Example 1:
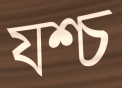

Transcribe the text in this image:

যশ্চ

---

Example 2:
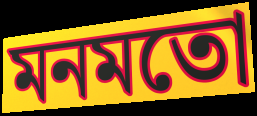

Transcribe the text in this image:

মনমতো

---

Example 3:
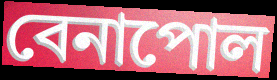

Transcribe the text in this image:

বেনাপোল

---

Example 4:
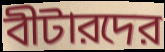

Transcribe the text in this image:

বীটারদের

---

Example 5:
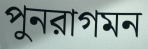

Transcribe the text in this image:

পুনরাগমন